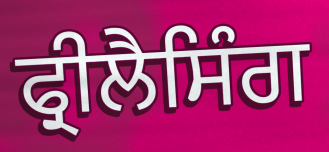
ਫ੍ਰੀਲੈਸਿੰਗ